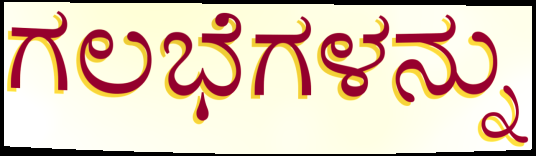
ಗಲಭೆಗಳನ್ನು